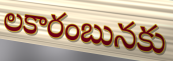
లకారంబునకు